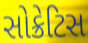
સોક્રેટિસ